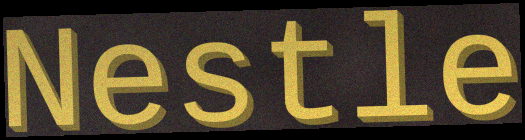
Nestle